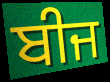
ਬੀਜ